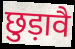
छुड़ावै